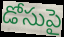
డోసుపై